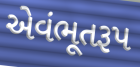
એવંભૂતરૂપ